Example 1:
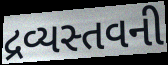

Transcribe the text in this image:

દ્રવ્યસ્તવની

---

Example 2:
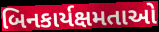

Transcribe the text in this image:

બિનકાર્યક્ષમતાઓ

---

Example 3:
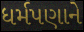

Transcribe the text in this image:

ધર્મપણાને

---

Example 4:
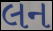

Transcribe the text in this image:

લન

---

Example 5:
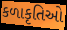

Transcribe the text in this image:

કળાકૃતિઓ